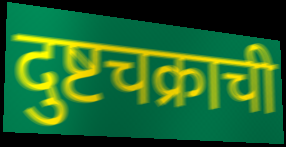
दुष्टचक्राची